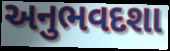
અનુભવદશા